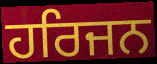
ਹਰਿਜਨ